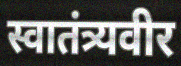
स्वातंत्र्यवीर